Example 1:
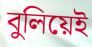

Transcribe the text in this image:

বুলিয়েই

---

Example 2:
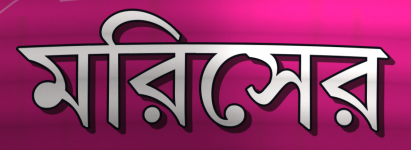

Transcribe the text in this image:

মরিসের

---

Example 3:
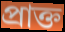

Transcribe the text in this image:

প্রাক্ত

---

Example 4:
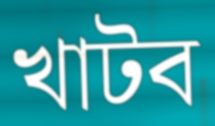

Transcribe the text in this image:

খাটব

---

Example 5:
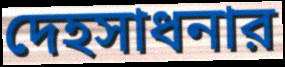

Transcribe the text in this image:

দেহসাধনার